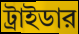
ট্রাইডার